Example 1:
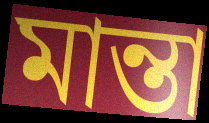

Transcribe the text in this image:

মান্তা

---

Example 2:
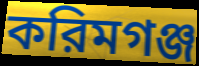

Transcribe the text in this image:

করিমগঞ্জ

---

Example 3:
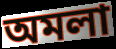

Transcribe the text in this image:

অমলা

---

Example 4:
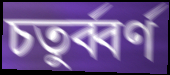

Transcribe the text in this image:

চতুর্ব্বর্ণ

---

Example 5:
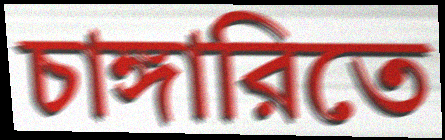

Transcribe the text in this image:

চাঙ্গারিতে